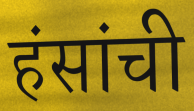
हंसांची